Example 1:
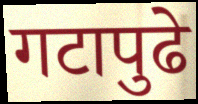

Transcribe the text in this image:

गटापुढे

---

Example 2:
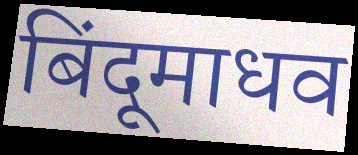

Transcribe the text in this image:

बिंदूमाधव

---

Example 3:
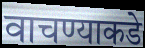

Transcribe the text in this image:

वाचण्याकडे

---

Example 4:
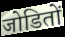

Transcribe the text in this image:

जोडितों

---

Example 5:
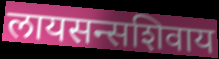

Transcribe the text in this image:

लायसन्सशिवाय